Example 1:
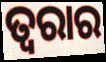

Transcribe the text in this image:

ତ୍ୱରାର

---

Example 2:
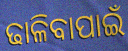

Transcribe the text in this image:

ଢାଳିବାପାଇଁ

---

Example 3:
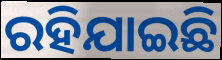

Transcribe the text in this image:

ରହିଯାଇଛି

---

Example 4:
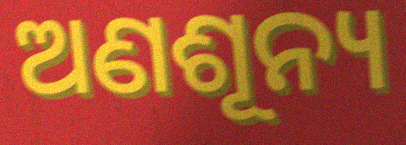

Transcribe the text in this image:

ଅଣଶୂନ୍ୟ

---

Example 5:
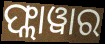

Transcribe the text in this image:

ଫ୍ଲାୱାର